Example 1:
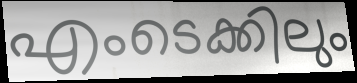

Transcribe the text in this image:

എംടെക്കിലും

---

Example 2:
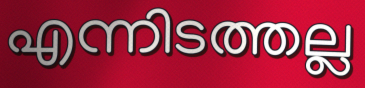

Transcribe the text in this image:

എന്നിടത്തല്ല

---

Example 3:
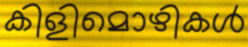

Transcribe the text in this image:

കിളിമൊഴികൾ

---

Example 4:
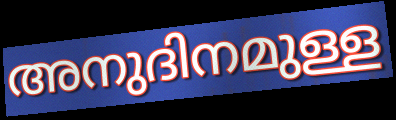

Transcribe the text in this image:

അനുദിനമുള്ള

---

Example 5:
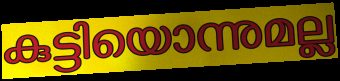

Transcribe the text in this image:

കുട്ടിയൊന്നുമല്ല